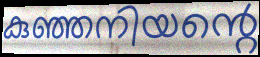
കുഞ്ഞനിയന്റെ